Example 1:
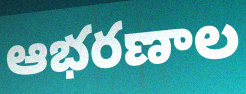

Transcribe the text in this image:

ఆభరణాల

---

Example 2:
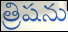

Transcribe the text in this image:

త్రిషను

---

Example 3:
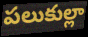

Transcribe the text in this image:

పలుకుల్లా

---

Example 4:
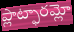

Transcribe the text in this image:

ప్లాట్ఫారమ్లో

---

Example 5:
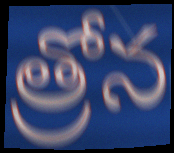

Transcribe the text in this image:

త్రోన